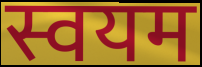
स्वयम